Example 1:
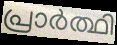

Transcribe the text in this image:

പ്രാർത്ഥി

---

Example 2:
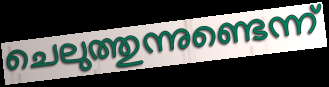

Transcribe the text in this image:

ചെലുത്തുന്നുണ്ടെന്ന്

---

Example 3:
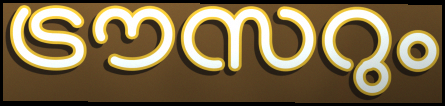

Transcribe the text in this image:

ട്രൗസറും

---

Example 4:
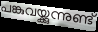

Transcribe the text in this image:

പങ്കുവയ്ക്കുന്നുണ്ട്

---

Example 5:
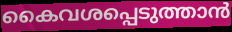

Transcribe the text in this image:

കൈവശപ്പെടുത്താൻ